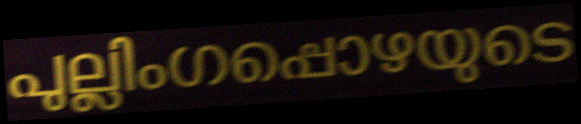
പുല്ലിംഗപ്പൊഴയുടെ